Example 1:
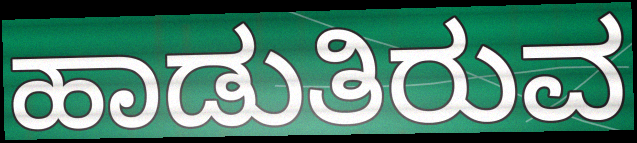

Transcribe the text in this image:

ಹಾಡುತಿರುವ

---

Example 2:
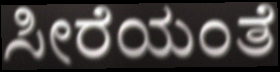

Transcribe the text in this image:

ಸೀರೆಯಂತೆ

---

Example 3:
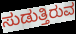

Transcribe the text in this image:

ಸುಡುತ್ತಿರುವ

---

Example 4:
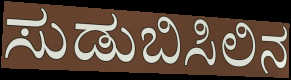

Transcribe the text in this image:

ಸುಡುಬಿಸಿಲಿನ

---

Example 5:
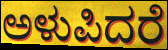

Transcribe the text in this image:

ಅಳುಪಿದರೆ